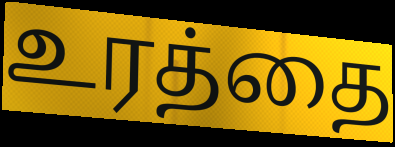
உரத்தை